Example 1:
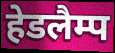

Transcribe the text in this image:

हेडलैम्प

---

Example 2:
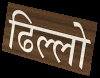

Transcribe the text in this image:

ढिल्लो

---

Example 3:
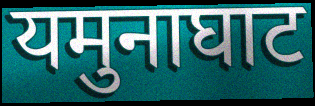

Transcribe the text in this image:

यमुनाघाट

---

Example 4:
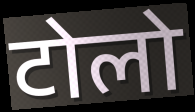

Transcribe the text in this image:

टोलो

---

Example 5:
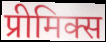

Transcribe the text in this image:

प्रीमिक्स